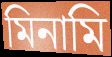
মিনামি